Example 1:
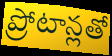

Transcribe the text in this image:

ప్రోటాన్లతో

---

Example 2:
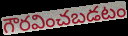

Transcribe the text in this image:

గౌరవించబడటం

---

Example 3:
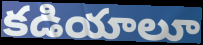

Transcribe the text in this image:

కడియాలూ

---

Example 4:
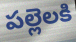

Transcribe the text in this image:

పల్లెలకి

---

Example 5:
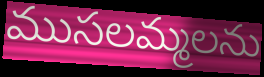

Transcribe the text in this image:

ముసలమ్మలను